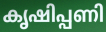
കൃഷിപ്പണി